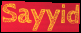
Sayyid